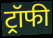
ट्रॉफी